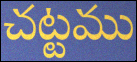
చట్టము